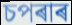
চপৰাৰ